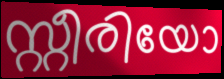
സ്റ്റീരിയോ